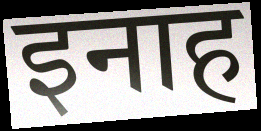
इनाह